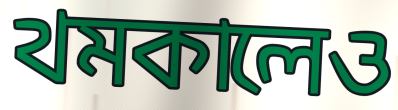
থমকালেও